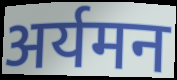
अर्यमन